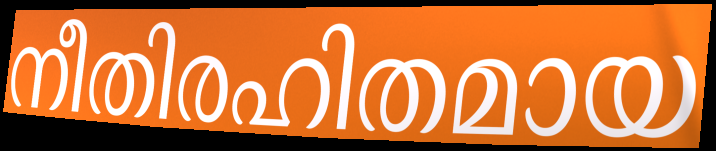
നീതിരഹിതമായ